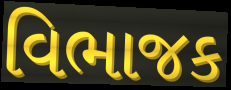
વિભાજક